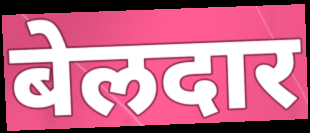
बेलदार